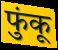
फुंकू